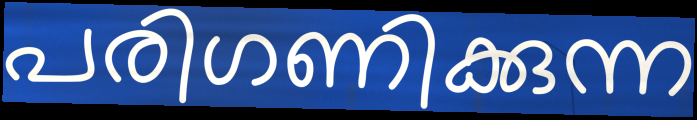
പരിഗണിക്കുന്ന